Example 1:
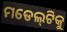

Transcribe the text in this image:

ମଡେଲ୍‌ଟିକୁ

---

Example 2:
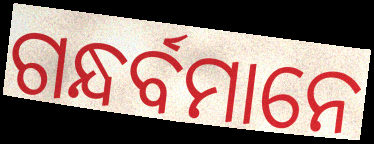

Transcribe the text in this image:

ଗନ୍ଧର୍ବମାନେ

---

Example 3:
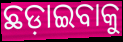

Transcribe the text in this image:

ଛଡ଼ାଇବାକୁ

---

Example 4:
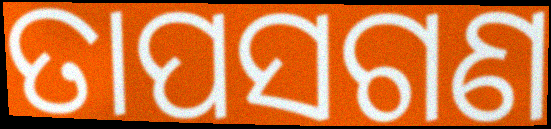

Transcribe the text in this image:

ତାପସଗଣ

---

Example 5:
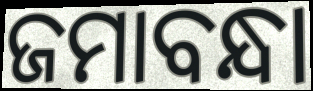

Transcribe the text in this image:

ଜମାବନ୍ଧା